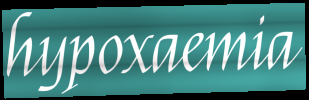
hypoxaemia